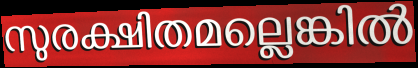
സുരക്ഷിതമല്ലെങ്കിൽ